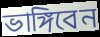
ভাঙ্গিবেন